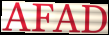
AFAD